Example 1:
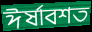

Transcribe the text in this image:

ঈর্ষাবশত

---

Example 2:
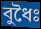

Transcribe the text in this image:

বুধৈঃ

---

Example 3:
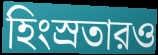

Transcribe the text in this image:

হিংস্রতারও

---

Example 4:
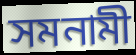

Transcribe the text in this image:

সমনামী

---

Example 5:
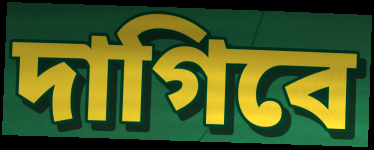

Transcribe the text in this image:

দাগিবে